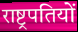
राष्ट्रपतियों